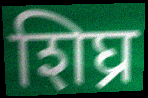
शिघ्र